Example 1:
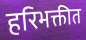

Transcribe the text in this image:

हरिभक्तीत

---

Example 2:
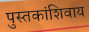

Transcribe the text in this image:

पुस्तकांशिवाय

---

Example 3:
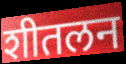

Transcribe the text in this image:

शीतलन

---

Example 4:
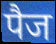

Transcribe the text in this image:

पैज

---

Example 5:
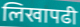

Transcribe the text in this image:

लिखापढी